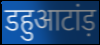
डहुआटांड़